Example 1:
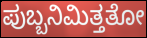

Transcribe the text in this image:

ಪುಬ್ಬನಿಮಿತ್ತತೋ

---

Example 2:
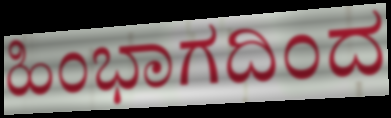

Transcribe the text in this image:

ಹಿಂಭಾಗದಿಂದ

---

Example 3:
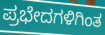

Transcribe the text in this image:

ಪ್ರಭೇದಗಳಿಗಿಂತ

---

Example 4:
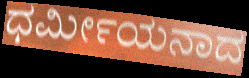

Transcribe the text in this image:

ಧರ್ಮೀಯನಾದ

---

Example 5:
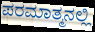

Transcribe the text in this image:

ಪರಮಾತ್ಮನಲ್ಲಿ